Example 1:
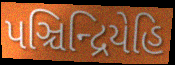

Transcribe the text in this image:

પઞ્ચિન્દ્રિયેહિ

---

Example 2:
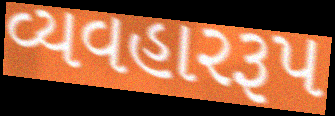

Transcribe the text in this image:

વ્યવહારરૂપ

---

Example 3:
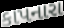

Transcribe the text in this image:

કાપનારા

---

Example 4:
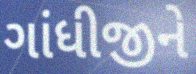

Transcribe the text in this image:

ગાંધીજીને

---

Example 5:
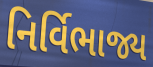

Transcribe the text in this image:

નિર્વિભાજ્ય